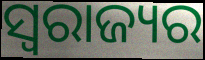
ସ୍ବରାଜ୍ୟର